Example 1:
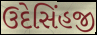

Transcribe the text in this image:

ઉદેસિંહજી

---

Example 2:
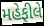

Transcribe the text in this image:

મહેફીલે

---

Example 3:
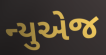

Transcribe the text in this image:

ન્યુએજ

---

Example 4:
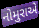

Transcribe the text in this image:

નોમુરાએ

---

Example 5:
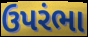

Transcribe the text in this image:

ઉપરંભા